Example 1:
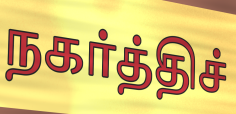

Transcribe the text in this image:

நகர்த்திச்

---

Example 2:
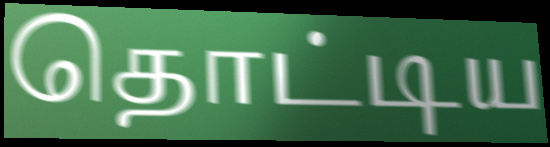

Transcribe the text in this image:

தொட்டிய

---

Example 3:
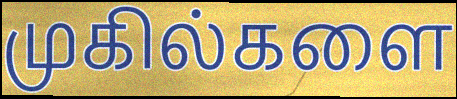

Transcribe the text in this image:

முகில்களை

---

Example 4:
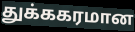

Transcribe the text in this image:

துக்ககரமான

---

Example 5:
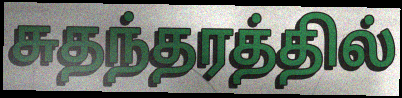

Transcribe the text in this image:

சுதந்தரத்தில்